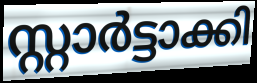
സ്റ്റാർട്ടാക്കി